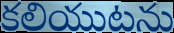
కలియుటను